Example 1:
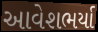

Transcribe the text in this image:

આવેશભર્યા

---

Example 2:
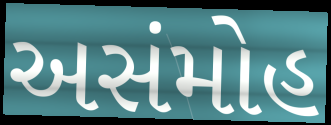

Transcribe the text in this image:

અસંમોહ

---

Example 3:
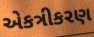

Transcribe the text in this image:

એકત્રીકરણ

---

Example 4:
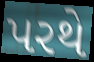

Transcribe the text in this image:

પરથે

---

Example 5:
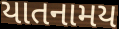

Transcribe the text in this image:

યાતનામય